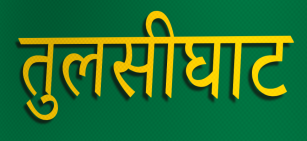
तुलसीघाट